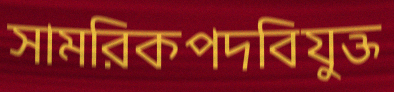
সামরিকপদবিযুক্ত